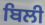
ਬਿਲੀ